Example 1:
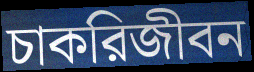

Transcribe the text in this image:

চাকরিজীবন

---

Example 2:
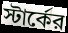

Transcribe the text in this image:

স্টার্কের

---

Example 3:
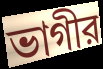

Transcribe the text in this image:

ভাগীর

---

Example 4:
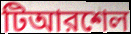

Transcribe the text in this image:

টিআরশেল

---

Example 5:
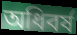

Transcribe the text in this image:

অধিবর্ষ